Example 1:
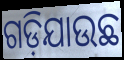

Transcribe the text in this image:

ଗଡ଼ିଯାଉଛ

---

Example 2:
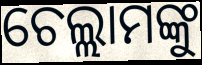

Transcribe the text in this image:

ଚେଲ୍ଲାମଙ୍କୁ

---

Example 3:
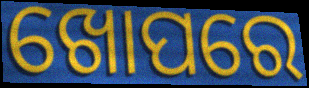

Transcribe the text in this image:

ଖୋପରେ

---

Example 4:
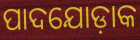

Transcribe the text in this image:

ପାଦଯୋଡ଼ାକ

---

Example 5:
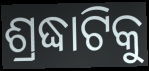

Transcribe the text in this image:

ଶ୍ରଦ୍ଧାଟିକୁ